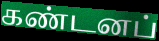
கண்டனப்